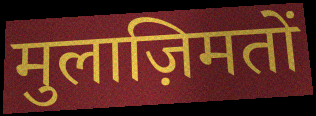
मुलाज़िमतों